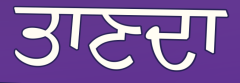
ਤਾਣਦਾ